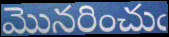
మొనరించుఁ